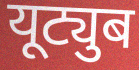
यूट्युब